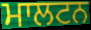
ਮਾਲਟਨ